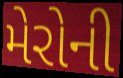
મેરોની